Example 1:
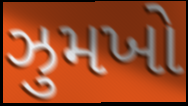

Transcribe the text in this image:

ઝુમખો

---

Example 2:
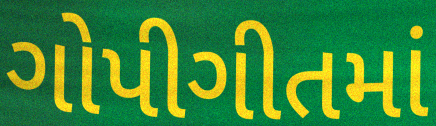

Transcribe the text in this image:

ગોપીગીતમાં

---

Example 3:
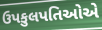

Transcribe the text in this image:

ઉપકુલપતિઓએ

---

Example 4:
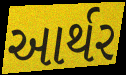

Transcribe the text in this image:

આર્થર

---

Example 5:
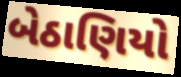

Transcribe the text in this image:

બેઠાણિયો